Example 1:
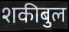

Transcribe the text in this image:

शकीबुल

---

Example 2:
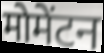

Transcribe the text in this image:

मोमेंटन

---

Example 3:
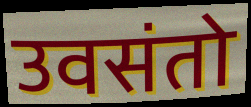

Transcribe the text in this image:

उवसंतो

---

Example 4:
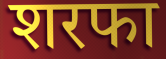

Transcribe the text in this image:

शरफा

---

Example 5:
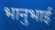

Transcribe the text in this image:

भानुभाई